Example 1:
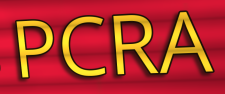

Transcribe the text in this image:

PCRA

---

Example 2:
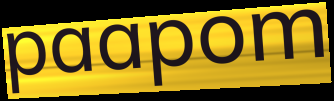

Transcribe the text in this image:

paapom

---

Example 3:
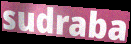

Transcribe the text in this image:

sudraba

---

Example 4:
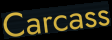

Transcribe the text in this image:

Carcass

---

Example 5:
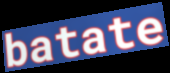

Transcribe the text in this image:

batate